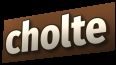
cholte